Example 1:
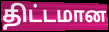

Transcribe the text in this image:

திட்டமான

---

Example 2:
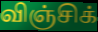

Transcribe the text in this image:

விஞ்சிக்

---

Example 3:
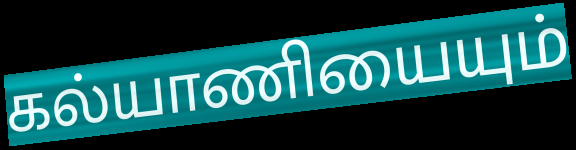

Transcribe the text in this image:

கல்யாணியையும்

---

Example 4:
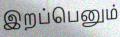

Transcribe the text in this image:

இறப்பெனும்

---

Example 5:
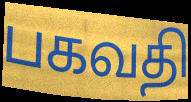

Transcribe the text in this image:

பகவதி